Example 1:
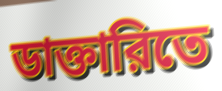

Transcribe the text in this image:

ডাক্তারিতে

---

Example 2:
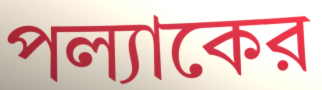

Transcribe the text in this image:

পল্যাকের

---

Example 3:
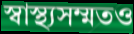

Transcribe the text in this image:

স্বাস্থ্যসম্মতও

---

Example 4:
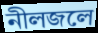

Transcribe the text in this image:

নীলজলে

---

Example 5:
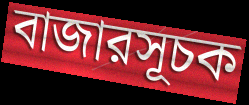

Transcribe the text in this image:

বাজারসূচক